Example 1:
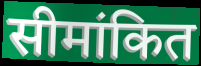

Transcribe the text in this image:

सीमांकित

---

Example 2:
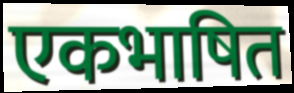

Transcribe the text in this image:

एकभाषित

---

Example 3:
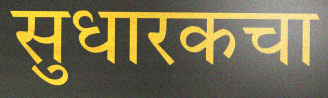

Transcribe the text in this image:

सुधारकचा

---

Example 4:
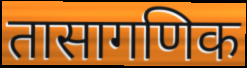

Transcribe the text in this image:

तासागणिक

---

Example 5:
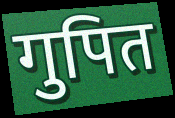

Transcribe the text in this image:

गुपित